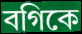
বগিকে